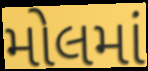
મોલમાં